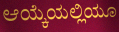
ಆಯ್ಕೆಯಲ್ಲಿಯೂ